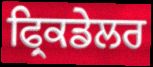
ਫ੍ਰਿਕਡੇਲਰ